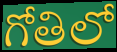
గోతిలో